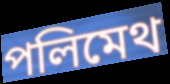
পলিমেথ